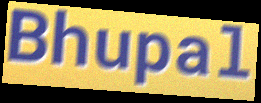
Bhupal